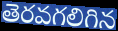
తెరవగలిగిన